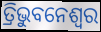
ତ୍ରିଭୁବନେଶ୍ବର